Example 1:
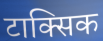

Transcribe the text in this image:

टाक्सिक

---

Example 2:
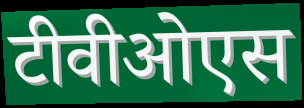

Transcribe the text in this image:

टीवीओएस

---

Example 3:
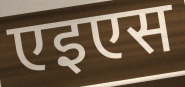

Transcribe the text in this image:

एइएस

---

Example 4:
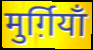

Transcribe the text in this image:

मुर्ग़ियाँ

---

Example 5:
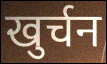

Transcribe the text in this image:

खुर्चन